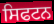
ਸਿਫਟਨ